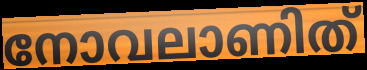
നോവലാണിത്